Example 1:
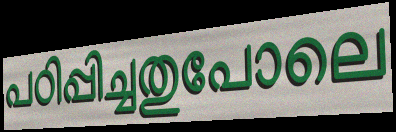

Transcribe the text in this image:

പഠിപ്പിച്ചതുപോലെ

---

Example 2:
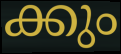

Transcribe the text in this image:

ക്കും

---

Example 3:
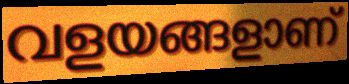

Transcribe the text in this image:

വളയങ്ങളാണ്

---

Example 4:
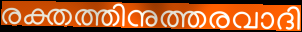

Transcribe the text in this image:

രക്തത്തിനുത്തരവാദി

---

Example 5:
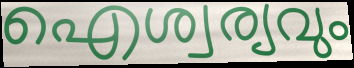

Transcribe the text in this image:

ഐശ്വര്യവും